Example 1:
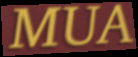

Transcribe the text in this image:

MUA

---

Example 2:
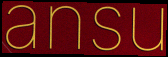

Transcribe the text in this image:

ansu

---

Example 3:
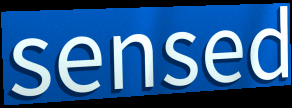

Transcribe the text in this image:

sensed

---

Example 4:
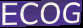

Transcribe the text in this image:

ECOG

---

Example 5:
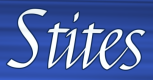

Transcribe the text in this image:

Stites